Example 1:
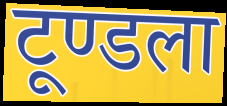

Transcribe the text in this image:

टूण्डला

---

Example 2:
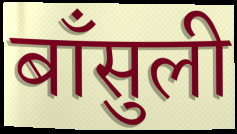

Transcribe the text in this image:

बाँसुली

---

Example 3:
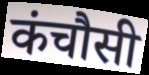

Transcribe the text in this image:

कंचौसी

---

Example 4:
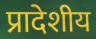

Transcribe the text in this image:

प्रादेशीय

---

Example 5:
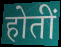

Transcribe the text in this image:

होतीं